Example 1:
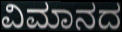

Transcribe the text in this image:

ವಿಮಾನದ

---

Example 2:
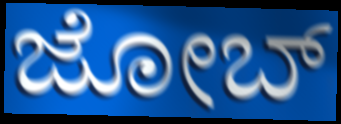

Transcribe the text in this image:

ಜೋಬ್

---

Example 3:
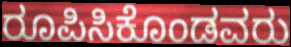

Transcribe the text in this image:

ರೂಪಿಸಿಕೊಂಡವರು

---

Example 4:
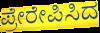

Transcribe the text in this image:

ಪ್ರೇರೇಪಿಸಿದ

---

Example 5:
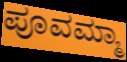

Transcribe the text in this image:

ಪೂವಮ್ಮಾ